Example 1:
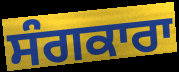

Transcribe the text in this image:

ਸੰਗਕਾਰਾ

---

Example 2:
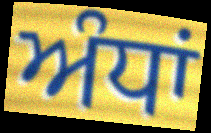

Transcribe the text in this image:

ਅੰਧਾਂ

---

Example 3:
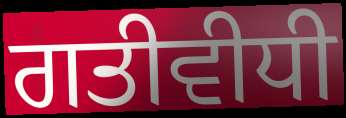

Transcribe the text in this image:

ਗਤੀਵੀਧੀ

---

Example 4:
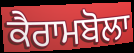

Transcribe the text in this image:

ਕੈਰਾਮਬੋਲਾ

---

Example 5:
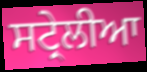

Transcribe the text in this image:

ਸਟ੍ਰੇਲੀਆ